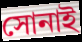
সোনাই